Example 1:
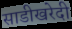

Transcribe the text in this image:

साडीखरेदी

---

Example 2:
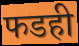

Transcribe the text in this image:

फडही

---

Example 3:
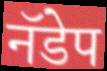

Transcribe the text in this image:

नॅडेप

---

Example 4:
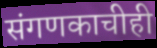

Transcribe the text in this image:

संगणकाचीही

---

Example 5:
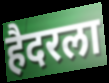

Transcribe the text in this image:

हैदरला